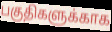
பகுதிகளுக்காக